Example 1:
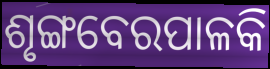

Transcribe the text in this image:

ଶୃଙ୍ଗବେରପାଳକି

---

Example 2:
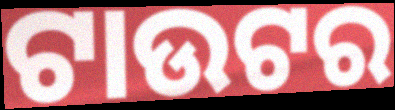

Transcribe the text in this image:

ଟାଉଟର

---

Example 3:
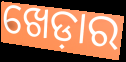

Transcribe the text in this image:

ଖେଡ଼ାର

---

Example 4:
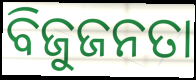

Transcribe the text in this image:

ବିଜୁଜନତା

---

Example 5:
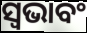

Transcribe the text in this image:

ସ୍ଵଭାବଂ